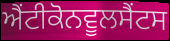
ਐਂਟੀਕੋਨਵੂਲਸੈਂਟਸ